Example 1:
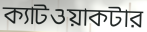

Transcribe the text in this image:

ক্যাটওয়াকটার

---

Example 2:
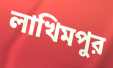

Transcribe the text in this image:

লাখিমপুর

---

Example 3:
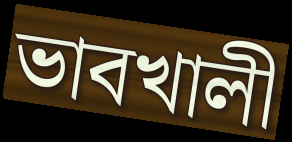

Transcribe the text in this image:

ভাবখালী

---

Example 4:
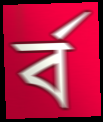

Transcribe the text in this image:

র্ব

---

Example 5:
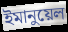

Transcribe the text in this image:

ইমানুয়েল